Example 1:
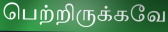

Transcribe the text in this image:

பெற்றிருக்கவே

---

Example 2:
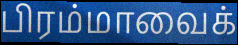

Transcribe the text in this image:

பிரம்மாவைக்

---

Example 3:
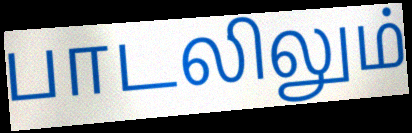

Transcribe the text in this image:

பாடலிலும்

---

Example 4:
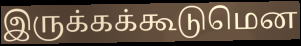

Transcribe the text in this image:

இருக்கக்கூடுமென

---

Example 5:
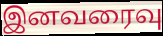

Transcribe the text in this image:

இனவரைவு